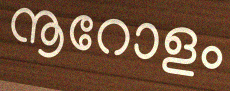
നൂറോളം